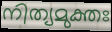
നിത്യമുക്തഃ